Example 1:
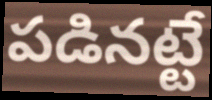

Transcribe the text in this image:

పడినట్టే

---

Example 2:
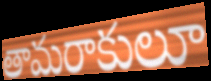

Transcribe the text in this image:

తామరాకులూ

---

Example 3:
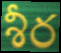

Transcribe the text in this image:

శీర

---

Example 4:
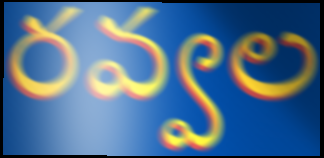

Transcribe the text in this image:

రవ్వల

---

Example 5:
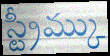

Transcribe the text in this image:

స్ట్రీమ్కు